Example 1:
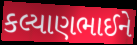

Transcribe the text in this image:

કલ્યાણભાઈને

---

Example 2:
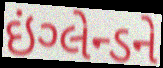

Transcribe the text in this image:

ઇંગ્લેન્ડને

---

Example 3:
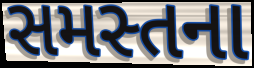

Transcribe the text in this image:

સમસ્તના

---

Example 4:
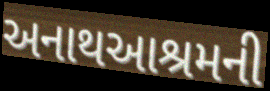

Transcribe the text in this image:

અનાથઆશ્રમની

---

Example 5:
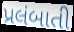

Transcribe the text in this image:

પ્રલંબાતી